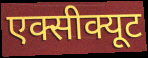
एक्सीक्यूट